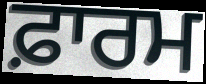
ਫ਼ਾਰਮ